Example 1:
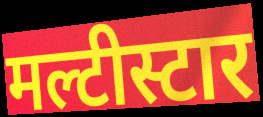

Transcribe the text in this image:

मल्टीस्टार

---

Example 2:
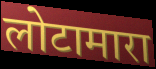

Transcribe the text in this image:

लोटामारा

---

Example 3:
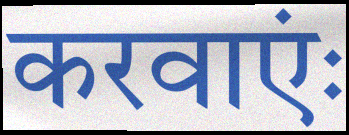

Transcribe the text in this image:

करवाएंः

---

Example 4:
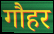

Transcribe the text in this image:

गौहर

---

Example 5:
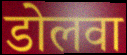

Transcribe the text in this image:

डोलवा